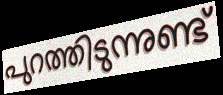
പുറത്തിടുന്നുണ്ട്